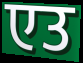
एउ